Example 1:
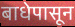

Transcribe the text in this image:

बाधेपासून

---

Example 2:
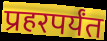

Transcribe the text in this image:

प्रहरपर्यंत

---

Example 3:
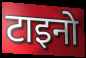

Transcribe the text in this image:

टाइनो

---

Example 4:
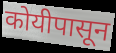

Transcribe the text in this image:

कोयीपासून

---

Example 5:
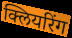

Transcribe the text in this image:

क्लियरिंग